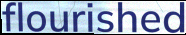
flourished